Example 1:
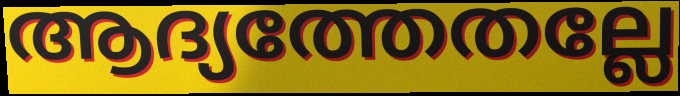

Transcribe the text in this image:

ആദ്യത്തേതല്ലേ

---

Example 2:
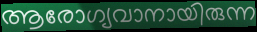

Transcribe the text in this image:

ആരോഗ്യവാനായിരുന്ന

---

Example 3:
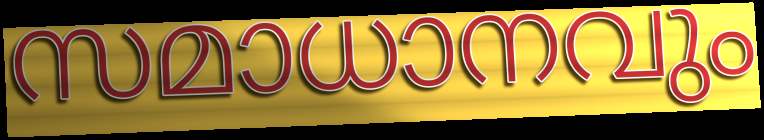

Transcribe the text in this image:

സമാധാനവും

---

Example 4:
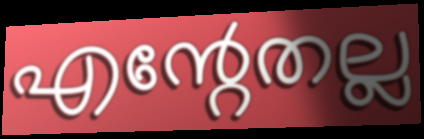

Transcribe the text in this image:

എന്റേതല്ല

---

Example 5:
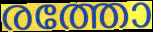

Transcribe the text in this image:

രത്തോ